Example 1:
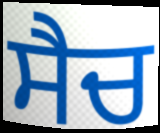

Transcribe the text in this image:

ਸੈਚ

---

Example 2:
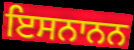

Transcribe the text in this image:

ਇਸਨਾਨਨ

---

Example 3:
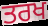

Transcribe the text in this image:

ਤਰਖ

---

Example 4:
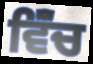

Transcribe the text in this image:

ਵਿੱੰਚ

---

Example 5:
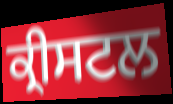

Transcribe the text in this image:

ਕ੍ਰੀਸਟਲ